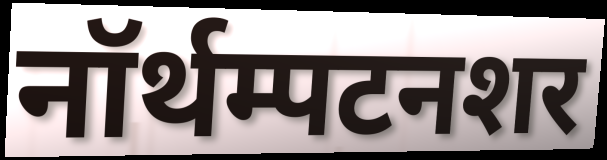
नॉर्थम्पटनशर